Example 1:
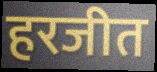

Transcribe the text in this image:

हरजीत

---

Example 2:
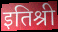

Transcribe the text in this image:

इतिश्री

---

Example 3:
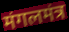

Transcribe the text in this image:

मंगलमंत्र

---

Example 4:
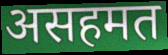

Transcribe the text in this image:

असहमत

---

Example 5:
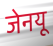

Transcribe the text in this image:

जेनयू